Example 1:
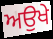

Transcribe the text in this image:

ਅਉਖੇ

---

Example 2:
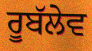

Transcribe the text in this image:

ਰੂਬੱਲੇਵ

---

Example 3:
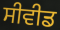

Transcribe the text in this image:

ਸੀਵੀਡ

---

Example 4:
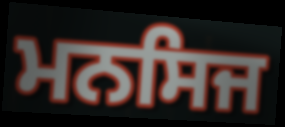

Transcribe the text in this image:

ਮਨਸਿਜ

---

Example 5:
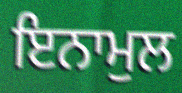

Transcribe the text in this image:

ਇਨਾਮੁਲ